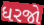
ધરજો